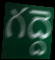
గద్దె